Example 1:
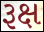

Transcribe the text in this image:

રૂક્ષ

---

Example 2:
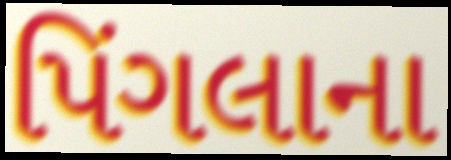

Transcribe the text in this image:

પિંગલાના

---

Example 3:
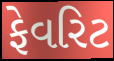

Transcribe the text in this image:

ફેવરિટ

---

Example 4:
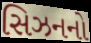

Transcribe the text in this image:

સિઝનનો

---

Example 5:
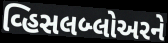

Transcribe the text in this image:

વ્હિસલબ્લોઅરને